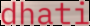
dhati